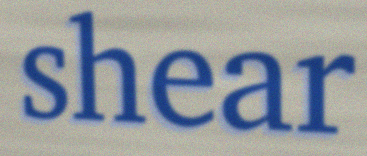
shear